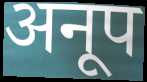
अनूप